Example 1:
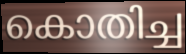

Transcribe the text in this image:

കൊതിച്ച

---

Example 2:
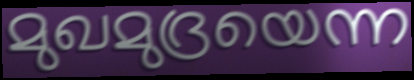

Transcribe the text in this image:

മുഖമുദ്രയെന്ന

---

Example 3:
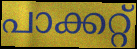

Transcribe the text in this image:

പാക്കറ്റ്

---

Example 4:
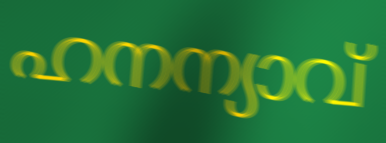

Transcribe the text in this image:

ഹനന്യാവ്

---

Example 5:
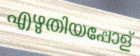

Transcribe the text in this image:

എഴുതിയപ്പോള്